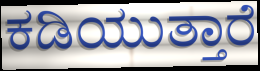
ಕಡಿಯುತ್ತಾರೆ